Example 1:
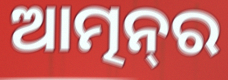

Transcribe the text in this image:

ଆତ୍ମନ୍‌ର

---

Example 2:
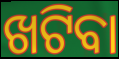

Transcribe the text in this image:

ଖଟିବା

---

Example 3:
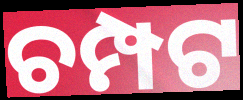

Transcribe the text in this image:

ଚମ୍ପଟ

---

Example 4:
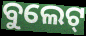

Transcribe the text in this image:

ବୁଲେଟ୍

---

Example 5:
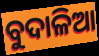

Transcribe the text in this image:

ବୁଦାଳିଆ